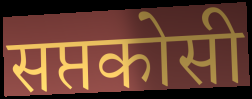
सप्तकोसी